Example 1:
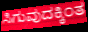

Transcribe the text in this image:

ಸಿಗುವುದಕ್ಕಿಂತ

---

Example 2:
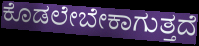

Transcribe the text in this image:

ಕೊಡಲೇಬೇಕಾಗುತ್ತದೆ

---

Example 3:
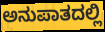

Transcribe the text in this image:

ಅನುಪಾತದಲ್ಲಿ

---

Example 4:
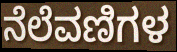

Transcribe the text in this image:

ನೆಲೆವಣಿಗಳ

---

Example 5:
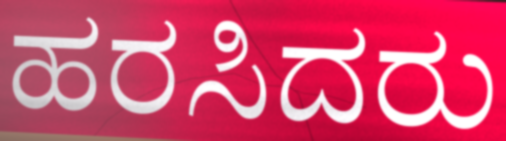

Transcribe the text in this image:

ಹರಸಿದರು